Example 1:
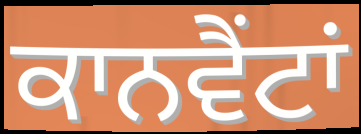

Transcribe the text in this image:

ਕਾਨਵੈਂਟਾਂ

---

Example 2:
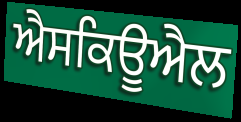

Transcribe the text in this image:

ਐਸਕਿਊਐਲ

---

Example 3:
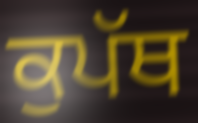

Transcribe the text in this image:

ਕੁਪੱਥ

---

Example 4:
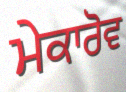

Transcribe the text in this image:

ਮੇਕਾਰੋਵ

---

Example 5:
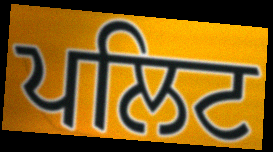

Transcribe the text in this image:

ਪਲਿਟ